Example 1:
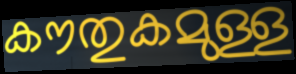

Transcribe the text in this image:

കൗതുകമുള്ള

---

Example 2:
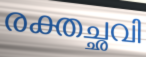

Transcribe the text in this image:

രക്തച്ഛവി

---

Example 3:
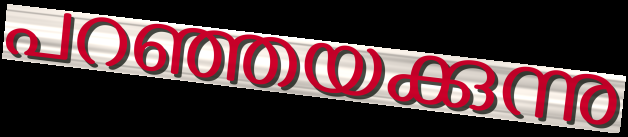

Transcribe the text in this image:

പറഞ്ഞയക്കുന്നു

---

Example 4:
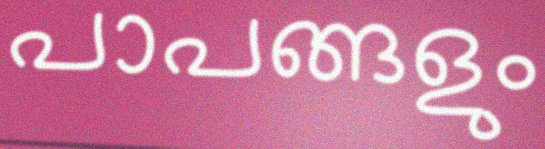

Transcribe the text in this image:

പാപങ്ങളും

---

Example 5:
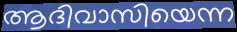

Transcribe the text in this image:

ആദിവാസിയെന്ന